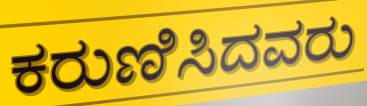
ಕರುಣಿಸಿದವರು